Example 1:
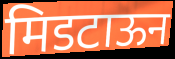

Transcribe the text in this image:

मिडटाऊन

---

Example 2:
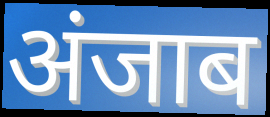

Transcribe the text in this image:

अंजाब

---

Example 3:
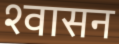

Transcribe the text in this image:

श्वासन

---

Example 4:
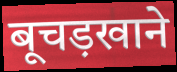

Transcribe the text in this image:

बूचड़खाने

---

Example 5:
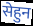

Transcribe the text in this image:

सेहुन